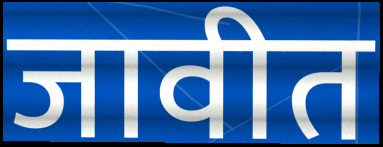
जावीत